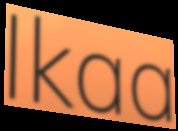
Ikaa